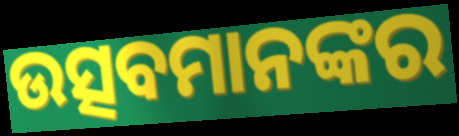
ଉତ୍ସବମାନଙ୍କର